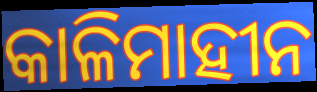
କାଳିମାହୀନ